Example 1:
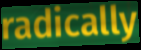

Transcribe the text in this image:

radically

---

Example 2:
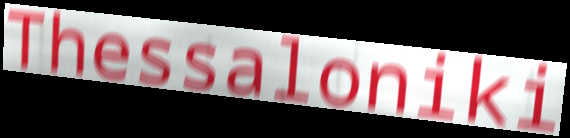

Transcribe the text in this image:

Thessaloniki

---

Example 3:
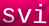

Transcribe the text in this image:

svi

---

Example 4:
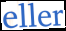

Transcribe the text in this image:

eller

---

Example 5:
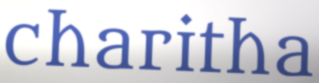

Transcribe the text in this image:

charitha